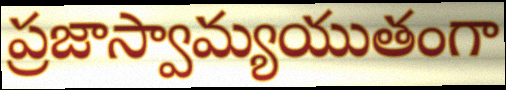
ప్రజాస్వామ్యయుతంగా